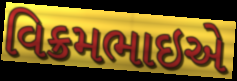
વિક્રમભાઇએ